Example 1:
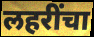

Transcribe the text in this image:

लहरींचा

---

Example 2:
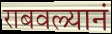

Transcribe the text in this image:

राबवल्यानं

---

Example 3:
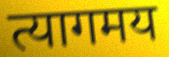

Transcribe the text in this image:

त्यागमय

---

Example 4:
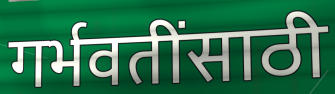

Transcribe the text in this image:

गर्भवतींसाठी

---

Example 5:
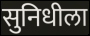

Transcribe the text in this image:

सुनिधीला